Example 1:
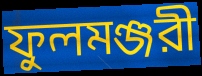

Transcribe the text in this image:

ফুলমঞ্জরী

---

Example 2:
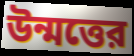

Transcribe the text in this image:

উন্মত্তের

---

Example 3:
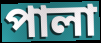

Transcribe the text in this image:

পালা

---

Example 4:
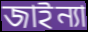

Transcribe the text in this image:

জাইন্যা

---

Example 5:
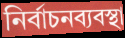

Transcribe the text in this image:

নির্বাচনব্যবস্থা